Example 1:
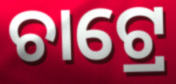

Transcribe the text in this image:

ଚାଟ୍ରେ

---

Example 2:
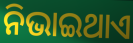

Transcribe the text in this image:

ନିଭାଇଥାଏ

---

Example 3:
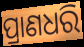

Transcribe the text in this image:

ପ୍ରାଣଧରି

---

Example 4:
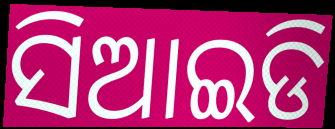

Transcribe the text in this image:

ସିଆଇଡି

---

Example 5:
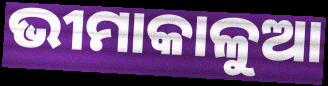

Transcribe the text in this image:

ଭୀମାକାଳୁଆ